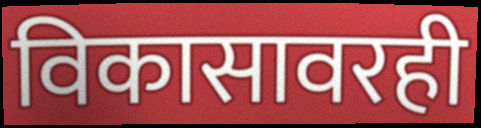
विकासावरही